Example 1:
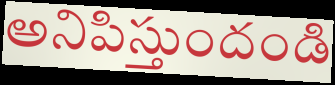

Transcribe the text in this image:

అనిపిస్తుందండి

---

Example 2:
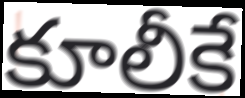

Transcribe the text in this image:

కూలీకే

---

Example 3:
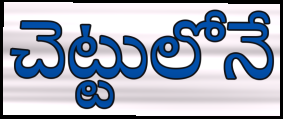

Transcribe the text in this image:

చెట్టులోనే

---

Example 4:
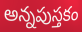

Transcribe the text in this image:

అన్నపుస్తకం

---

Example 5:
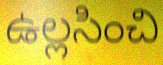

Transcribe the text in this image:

ఉల్లసించి